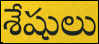
శేషులు